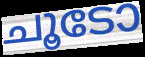
ചൂടോ